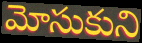
మోసుకుని